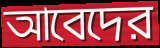
আবেদের